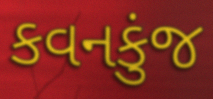
કવનકુંજ